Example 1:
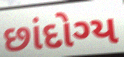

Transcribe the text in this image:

છાંદોગ્ય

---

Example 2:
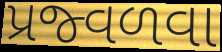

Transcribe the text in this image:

પ્રજ્વળવા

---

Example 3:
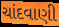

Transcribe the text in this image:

ચાંદવાણી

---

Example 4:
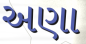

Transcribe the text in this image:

અણા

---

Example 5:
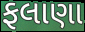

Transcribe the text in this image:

ફલાણા